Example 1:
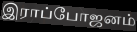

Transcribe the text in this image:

இராப்போஜனம்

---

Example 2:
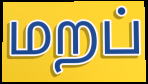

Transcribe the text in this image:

மறப்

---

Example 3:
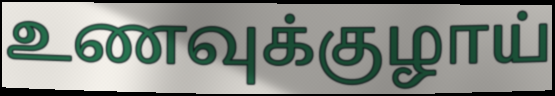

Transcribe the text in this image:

உணவுக்குழாய்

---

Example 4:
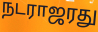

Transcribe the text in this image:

நடராஜரது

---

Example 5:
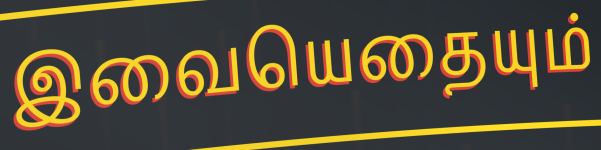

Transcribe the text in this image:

இவையெதையும்